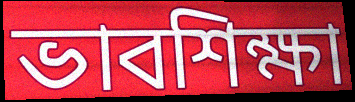
ভাবশিক্ষা